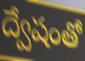
ద్వేషంతో